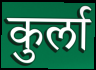
कुर्ला